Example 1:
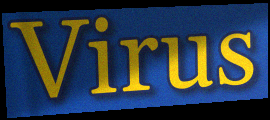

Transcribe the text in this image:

Virus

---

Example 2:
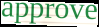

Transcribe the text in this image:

approve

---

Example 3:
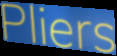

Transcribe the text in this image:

Pliers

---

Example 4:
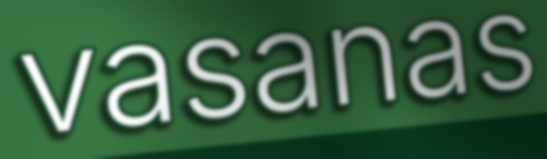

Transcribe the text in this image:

vasanas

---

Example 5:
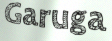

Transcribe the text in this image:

Garuga